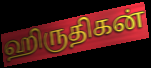
ஹிருதிகன்